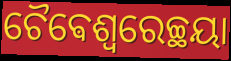
ଚୈଵେଶ୍ଵରେଚ୍ଛୟା